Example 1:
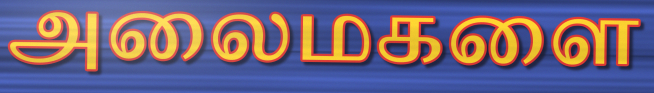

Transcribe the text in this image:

அலைமகளை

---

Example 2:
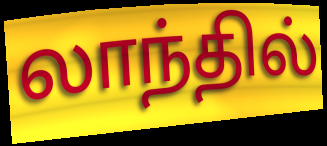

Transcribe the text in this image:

லாந்தில்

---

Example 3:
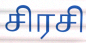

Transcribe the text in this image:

சிரசி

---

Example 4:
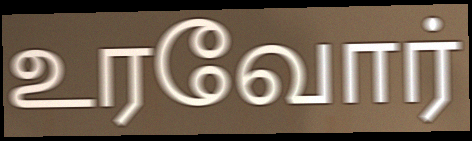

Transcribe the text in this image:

உரவோர்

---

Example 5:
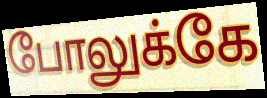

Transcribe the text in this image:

போலுக்கே